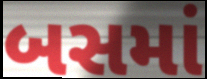
બસમાં